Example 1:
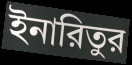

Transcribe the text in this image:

ইনারিতুর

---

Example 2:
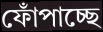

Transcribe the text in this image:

ফোঁপাচ্ছে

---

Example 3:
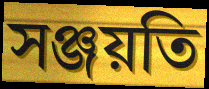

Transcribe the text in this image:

সঞ্জয়তি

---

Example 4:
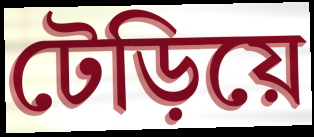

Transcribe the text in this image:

টেড়িয়ে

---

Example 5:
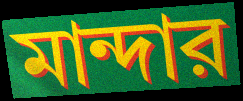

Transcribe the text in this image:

মান্দার